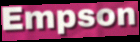
Empson